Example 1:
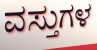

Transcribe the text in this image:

ವಸ್ತುಗಳ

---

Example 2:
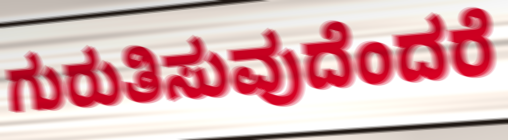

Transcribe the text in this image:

ಗುರುತಿಸುವುದೆಂದರೆ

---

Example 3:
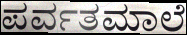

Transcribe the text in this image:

ಪರ್ವತಮಾಲೆ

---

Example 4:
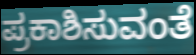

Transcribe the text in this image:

ಪ್ರಕಾಶಿಸುವಂತೆ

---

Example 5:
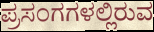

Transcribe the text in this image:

ಪ್ರಸಂಗಗಳಲ್ಲಿರುವ